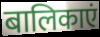
बालिकाएं